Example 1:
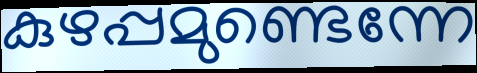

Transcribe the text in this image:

കുഴപ്പമുണ്ടെന്നേ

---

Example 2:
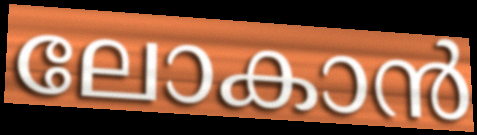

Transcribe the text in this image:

ലോകാൻ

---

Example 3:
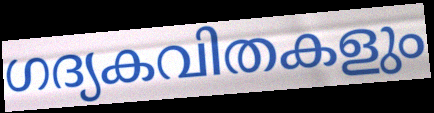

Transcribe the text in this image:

ഗദ്യകവിതകളും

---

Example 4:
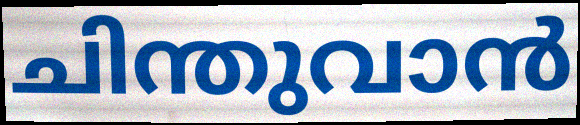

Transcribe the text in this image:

ചിന്തുവാൻ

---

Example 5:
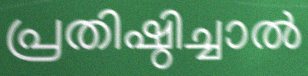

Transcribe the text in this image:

പ്രതിഷ്ഠിച്ചാൽ